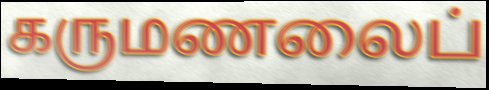
கருமணலைப்